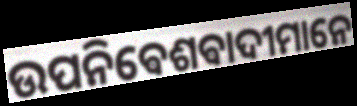
ଉପନିଵେଶଵାଦୀମାନେ